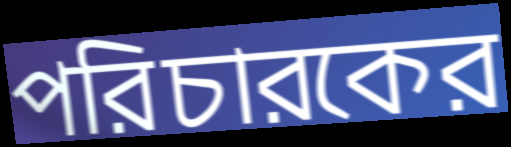
পরিচারকের